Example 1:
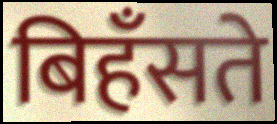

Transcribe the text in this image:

बिहँसते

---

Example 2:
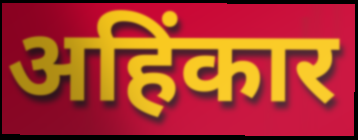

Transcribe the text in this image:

अहिंकार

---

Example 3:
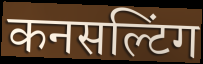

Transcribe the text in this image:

कनसल्टिंग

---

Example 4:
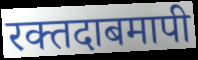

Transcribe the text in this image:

रक्तदाबमापी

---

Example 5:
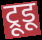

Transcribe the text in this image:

ट्रूडू